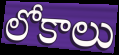
లోకాలు